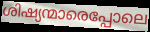
ശിഷ്യന്മാരെപ്പോലെ